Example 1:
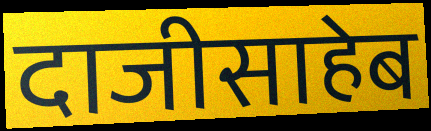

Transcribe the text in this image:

दाजीसाहेब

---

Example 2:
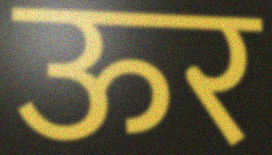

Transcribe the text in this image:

ऊर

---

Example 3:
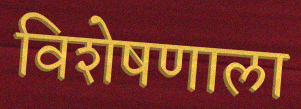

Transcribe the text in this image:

विशेषणाला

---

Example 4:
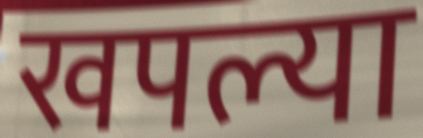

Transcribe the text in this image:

खपल्या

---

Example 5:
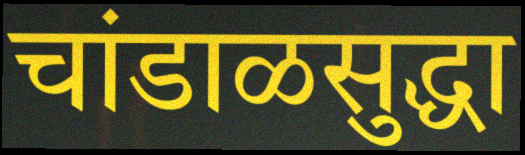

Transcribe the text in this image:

चांडाळसुद्धा